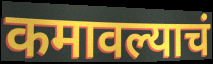
कमावल्याचं